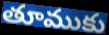
తూముకు